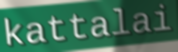
kattalai